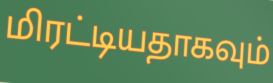
மிரட்டியதாகவும்